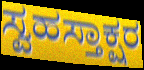
ಸ್ವಹಸ್ತಾಕ್ಷರ